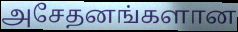
அசேதனங்களான